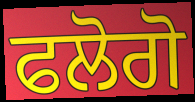
ਫਲੋਗੋ